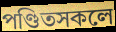
পণ্ডিতসকলে